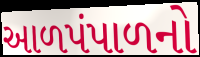
આળપંપાળનો